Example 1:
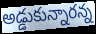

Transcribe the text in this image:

అడ్డుకున్నారన్న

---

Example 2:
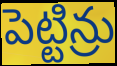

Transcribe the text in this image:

పెట్టిన్రు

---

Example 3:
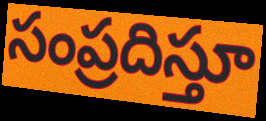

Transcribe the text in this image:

సంప్రదిస్తూ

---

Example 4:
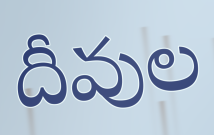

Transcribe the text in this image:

దీవుల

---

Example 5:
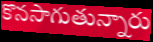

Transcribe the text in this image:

కొనసాగుతున్నారు